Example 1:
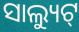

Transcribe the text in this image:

ସାଲ୍ୟୁଟ୍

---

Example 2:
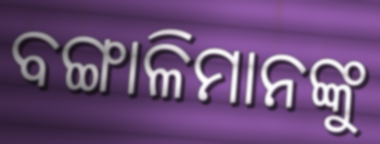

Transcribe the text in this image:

ବଙ୍ଗାଳିମାନଙ୍କୁ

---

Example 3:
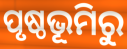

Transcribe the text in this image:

ପୃଷ୍ଠଭୂମିରୁ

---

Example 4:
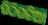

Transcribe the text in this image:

ପିଠିପଟିଆ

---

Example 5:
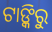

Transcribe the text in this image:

ଟାଙ୍କିରୁ